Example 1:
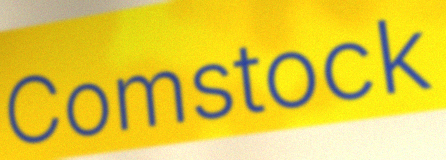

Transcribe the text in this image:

Comstock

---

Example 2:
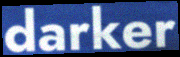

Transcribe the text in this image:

darker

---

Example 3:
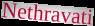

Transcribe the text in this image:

Nethravati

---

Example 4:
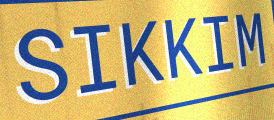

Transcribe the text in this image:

SIKKIM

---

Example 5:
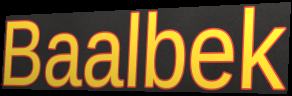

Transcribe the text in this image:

Baalbek